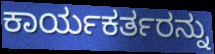
ಕಾರ್ಯಕರ್ತರನ್ನು